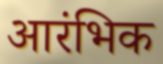
आरंभिक